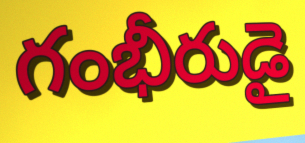
గంభీరుడై